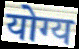
योग्य